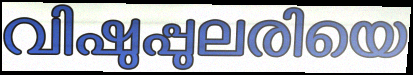
വിഷുപ്പുലരിയെ